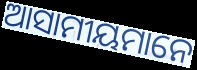
ଆସାମୀୟମାନେ